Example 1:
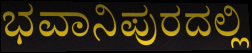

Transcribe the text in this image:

ಭವಾನಿಪುರದಲ್ಲಿ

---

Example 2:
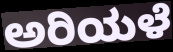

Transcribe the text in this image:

ಅರಿಯಳೆ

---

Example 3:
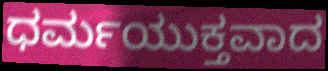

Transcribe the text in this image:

ಧರ್ಮಯುಕ್ತವಾದ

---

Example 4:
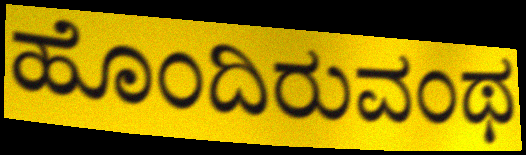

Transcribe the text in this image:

ಹೊಂದಿರುವಂಥ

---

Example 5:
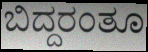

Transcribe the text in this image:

ಬಿದ್ದರಂತೂ